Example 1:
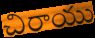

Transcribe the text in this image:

చిరాయు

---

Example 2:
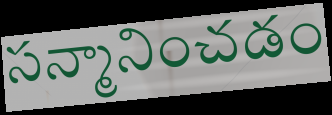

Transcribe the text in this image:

సన్మానించడం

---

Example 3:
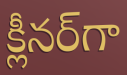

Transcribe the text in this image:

క్లీనర్‌గా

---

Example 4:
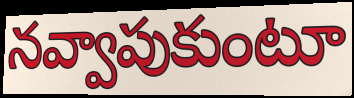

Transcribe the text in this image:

నవ్వాపుకుంటూ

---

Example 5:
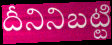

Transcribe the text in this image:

దీనినిబట్టి